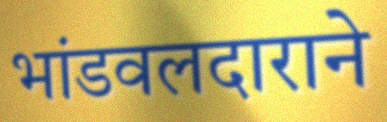
भांडवलदाराने